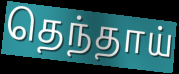
தெந்தாய்